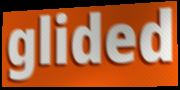
glided